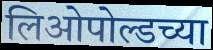
लिओपोल्डच्या